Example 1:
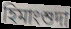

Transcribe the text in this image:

হিমাংশুদা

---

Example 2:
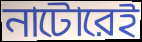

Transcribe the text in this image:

নাটোরেই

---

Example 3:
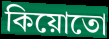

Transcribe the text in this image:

কিয়োতো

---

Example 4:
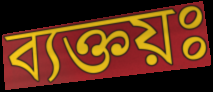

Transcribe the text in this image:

ব্যক্তয়ঃ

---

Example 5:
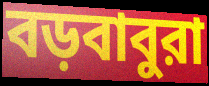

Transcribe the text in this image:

বড়বাবুরা